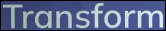
Transform